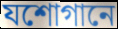
যশোগানে